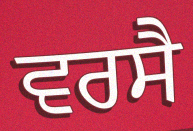
ਵਰਸੈ